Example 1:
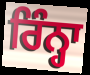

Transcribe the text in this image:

ਰਿੰਨ੍ਹਾ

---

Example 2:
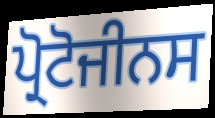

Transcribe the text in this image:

ਪ੍ਰੋਟੋਜੀਨਸ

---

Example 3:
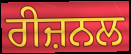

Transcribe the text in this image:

ਰੀਜ਼ਨਲ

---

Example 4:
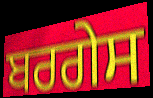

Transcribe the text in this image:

ਬਰਗੇਸ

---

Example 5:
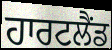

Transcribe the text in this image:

ਹਾਰਟਲੈਂਡ